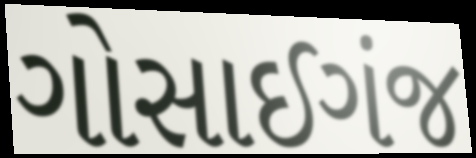
ગોસાઈગંજ